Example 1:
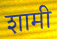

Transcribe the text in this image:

शामी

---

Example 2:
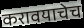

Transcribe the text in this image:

करावयाचेच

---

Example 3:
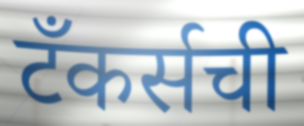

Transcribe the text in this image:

टँकर्सची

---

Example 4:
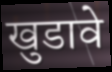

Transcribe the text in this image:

खुडावे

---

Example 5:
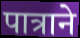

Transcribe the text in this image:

पात्राने